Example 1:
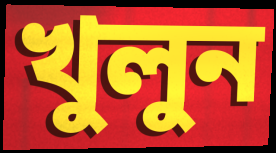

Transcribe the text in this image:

খুলুন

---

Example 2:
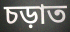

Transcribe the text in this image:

চড়াত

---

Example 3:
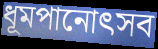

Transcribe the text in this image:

ধূমপানোৎসব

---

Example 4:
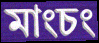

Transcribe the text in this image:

মাংচং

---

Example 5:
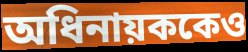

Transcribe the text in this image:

অধিনায়ককেও